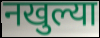
नखुल्या